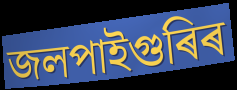
জলপাইগুৰিৰ